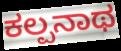
ಕಲ್ಪನಾಥ